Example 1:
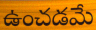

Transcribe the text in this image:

ఉంచడమే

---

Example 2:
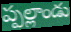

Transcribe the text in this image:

ప్పల్లాండు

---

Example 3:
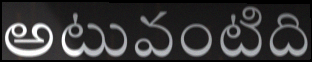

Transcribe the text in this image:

అటువంటిది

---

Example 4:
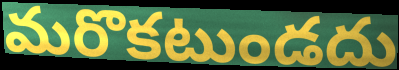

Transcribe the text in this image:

మరొకటుండదు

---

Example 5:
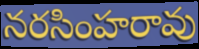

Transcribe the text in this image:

నరసింహరావు